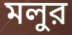
মলুর